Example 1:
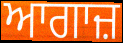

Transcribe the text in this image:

ਆਗਾਜ਼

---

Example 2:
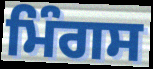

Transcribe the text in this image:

ਮਿੰਗਸ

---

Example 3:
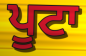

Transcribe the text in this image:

ਪੂਟਾ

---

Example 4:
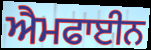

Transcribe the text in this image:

ਐਮਫਾਈਨ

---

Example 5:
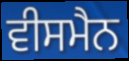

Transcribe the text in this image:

ਵੀਸਮੈਨ